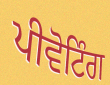
ਪੀਵੋਟਿੰਗ